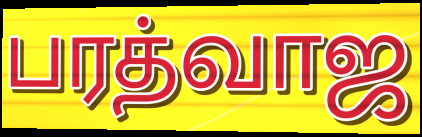
பரத்வாஜ